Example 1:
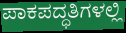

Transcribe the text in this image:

ಪಾಕಪದ್ಧತಿಗಳಲ್ಲಿ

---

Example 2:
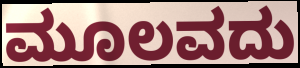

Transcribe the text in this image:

ಮೂಲವದು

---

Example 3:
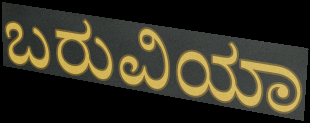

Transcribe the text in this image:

ಬರುವಿಯಾ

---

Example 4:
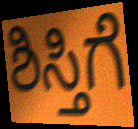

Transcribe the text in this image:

ಶಿಸ್ತಿಗೆ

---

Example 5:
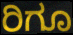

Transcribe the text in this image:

ರಿಗೂ